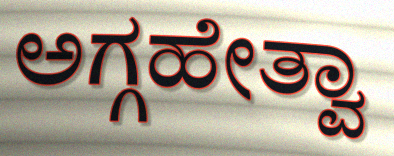
ಅಗ್ಗಹೇತ್ವಾ